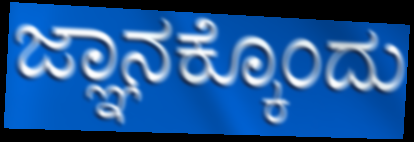
ಜ್ಞಾನಕ್ಕೊಂದು